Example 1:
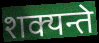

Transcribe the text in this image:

शक्यन्ते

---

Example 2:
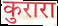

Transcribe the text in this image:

कुरारा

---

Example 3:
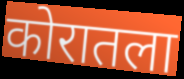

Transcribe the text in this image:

कोरातला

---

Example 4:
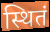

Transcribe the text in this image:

स्थितं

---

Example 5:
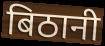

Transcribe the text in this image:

बिठानी